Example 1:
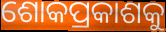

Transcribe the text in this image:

ଶୋକପ୍ରକାଶକୁ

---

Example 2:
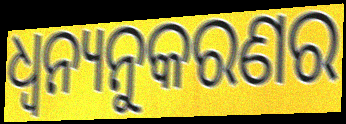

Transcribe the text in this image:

ଧ୍ବନ୍ୟନୁକରଣର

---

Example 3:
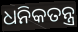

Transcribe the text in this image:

ଧନିକତନ୍ତ୍ର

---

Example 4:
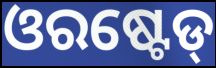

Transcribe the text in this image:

ଓରଷ୍ଟେଡ୍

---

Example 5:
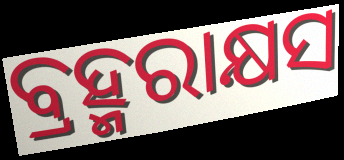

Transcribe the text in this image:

ବ୍ରହ୍ମରାକ୍ଷସ